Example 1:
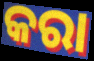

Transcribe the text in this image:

କରା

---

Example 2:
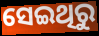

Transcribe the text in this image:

ସେଇଥିରୁ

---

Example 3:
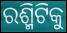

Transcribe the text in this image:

ରଶ୍ମିଟିକୁ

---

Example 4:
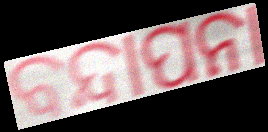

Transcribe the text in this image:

ବନ୍ଦାପନା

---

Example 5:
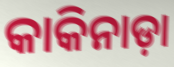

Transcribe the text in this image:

କାକିନାଡ଼ା